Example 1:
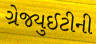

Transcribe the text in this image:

ગ્રેજ્યુઈટીની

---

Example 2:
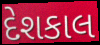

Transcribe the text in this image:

દેશકાલ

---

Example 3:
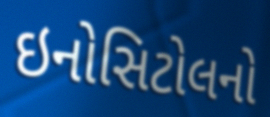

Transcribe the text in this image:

ઇનોસિટોલનો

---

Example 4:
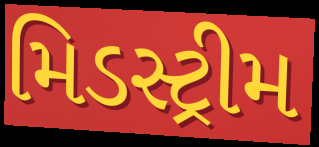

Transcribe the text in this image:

મિડસ્ટ્રીમ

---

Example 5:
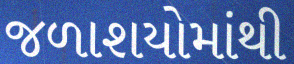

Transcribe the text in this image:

જળાશયોમાંથી